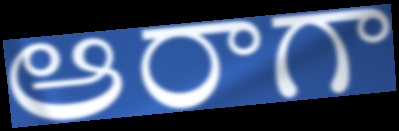
ఆరాగా